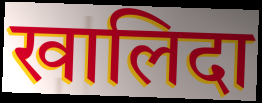
खालिदा